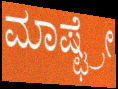
ಮಾಷ್ಟ್ರೇ